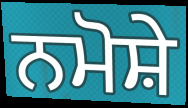
ਨਮੋਸ਼ੇ